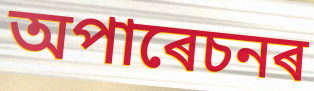
অপাৰেচনৰ